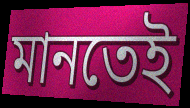
মানতেই